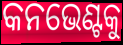
କନଭେଣ୍ଟକୁ